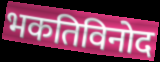
भकतिविनोद